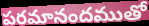
పరమానందముతో